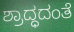
ಶ್ರಾದ್ಧದಂತೆ